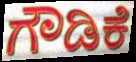
ಗೌಡಿಕೆ